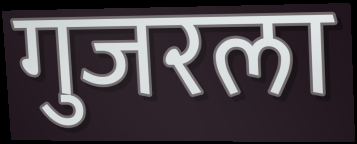
गुजरला